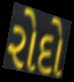
રોદો